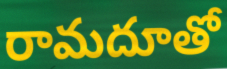
రామదూతో